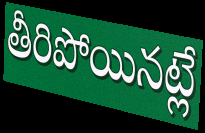
తీరిపోయినట్లే